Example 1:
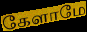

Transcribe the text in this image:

கேளாமே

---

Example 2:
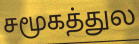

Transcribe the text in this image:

சமூகத்துல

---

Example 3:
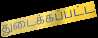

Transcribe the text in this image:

துடைக்கப்பட்ட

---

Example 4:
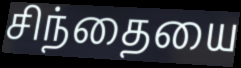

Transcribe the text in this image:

சிந்தையை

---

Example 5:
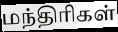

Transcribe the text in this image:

மந்திரிகள்